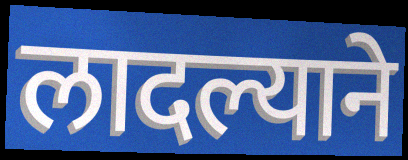
लादल्याने